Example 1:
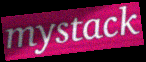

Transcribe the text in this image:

mystack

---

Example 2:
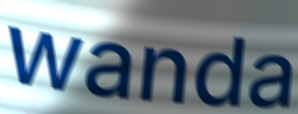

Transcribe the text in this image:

wanda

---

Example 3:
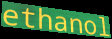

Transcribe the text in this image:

ethanol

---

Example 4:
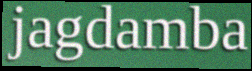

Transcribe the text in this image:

jagdamba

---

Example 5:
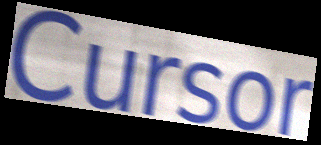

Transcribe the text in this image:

Cursor